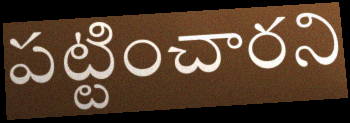
పట్టించారని